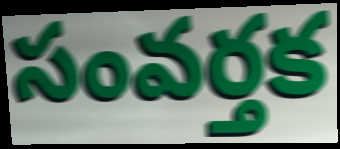
సంవర్తక